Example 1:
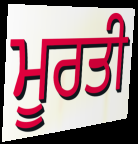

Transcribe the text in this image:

ਮੂਰਤੀ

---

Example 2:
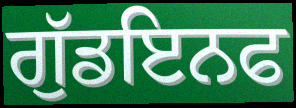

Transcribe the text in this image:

ਗੁੱਡਇਨਫ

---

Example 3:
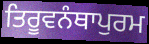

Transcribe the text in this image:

ਤਿਰੂਵਨੰਥਾਪੁਰਮ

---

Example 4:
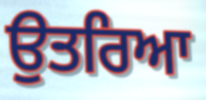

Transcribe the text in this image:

ਉਤਰਿਆ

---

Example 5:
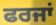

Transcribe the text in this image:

ਫਰਜਾਂ